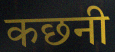
कछनी